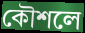
কৌশলে